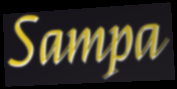
Sampa